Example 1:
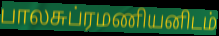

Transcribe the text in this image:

பாலசுப்ரமணியனிடம்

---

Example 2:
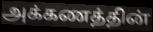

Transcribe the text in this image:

அக்கணத்தின்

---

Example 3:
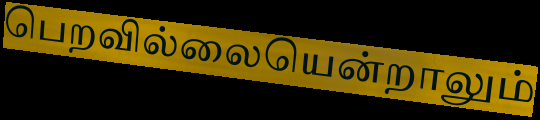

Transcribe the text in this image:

பெறவில்லையென்றாலும்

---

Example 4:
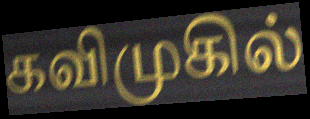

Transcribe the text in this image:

கவிமுகில்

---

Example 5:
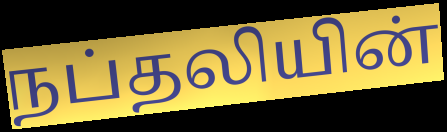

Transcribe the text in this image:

நப்தலியின்